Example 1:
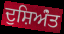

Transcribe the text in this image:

ਦੁਸ਼ਿਅਂੰਤ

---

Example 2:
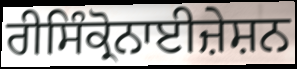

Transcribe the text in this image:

ਰੀਸਿੰਕ੍ਰੋਨਾਈਜ਼ੇਸ਼ਨ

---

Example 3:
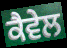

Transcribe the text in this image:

ਕੈਵੇਲ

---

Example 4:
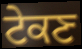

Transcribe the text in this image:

ਟੇਕਣ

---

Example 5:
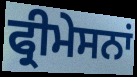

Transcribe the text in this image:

ਫ੍ਰੀਮੇਸਨਾਂ